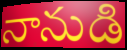
నానుడి